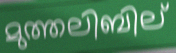
മുത്തലിബില്